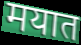
मयात